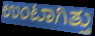
ಉಂಟಾಗಿತ್ತು